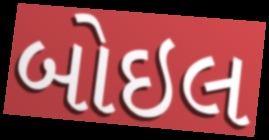
બોઇલ